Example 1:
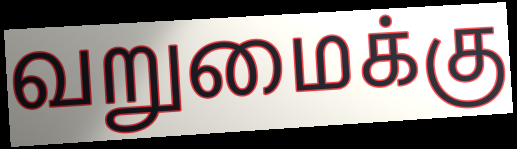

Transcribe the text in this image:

வறுமைக்கு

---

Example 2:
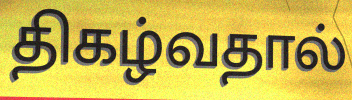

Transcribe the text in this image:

திகழ்வதால்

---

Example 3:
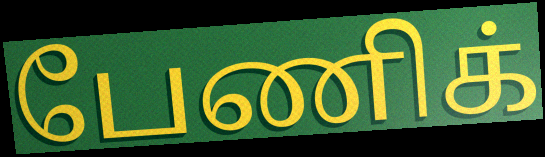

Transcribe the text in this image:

பேணிக்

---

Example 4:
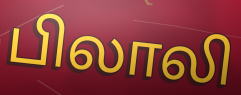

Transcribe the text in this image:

பிலாலி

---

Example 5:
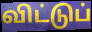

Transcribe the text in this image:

விட்டுப்